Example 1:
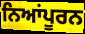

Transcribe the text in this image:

ਨਿਆਂਪੂਰਨ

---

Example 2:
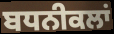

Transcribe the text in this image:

ਬਧਨੀਕਲਾਂ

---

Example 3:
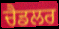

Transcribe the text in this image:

ਚੈਡਲਰ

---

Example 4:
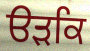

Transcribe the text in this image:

ੳੜਕਿ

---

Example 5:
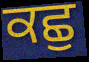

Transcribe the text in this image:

ਕਛੁ